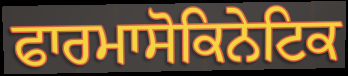
ਫਾਰਮਾਸੋਕਿਨੇਟਿਕ